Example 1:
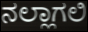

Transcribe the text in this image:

ನಲ್ಲಾಗಲಿ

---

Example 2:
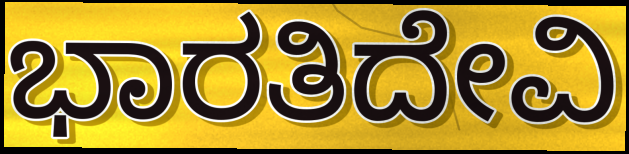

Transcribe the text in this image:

ಭಾರತಿದೇವಿ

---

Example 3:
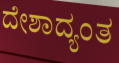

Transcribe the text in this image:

ದೇಶಾದ್ಯಂತ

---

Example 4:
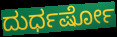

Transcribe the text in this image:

ದುರ್ಧರ್ಷೋ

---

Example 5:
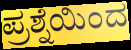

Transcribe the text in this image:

ಪ್ರಶ್ನೆಯಿಂದ